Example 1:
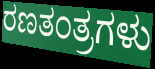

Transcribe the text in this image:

ರಣತಂತ್ರಗಳು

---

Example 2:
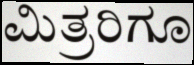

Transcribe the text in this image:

ಮಿತ್ರರಿಗೂ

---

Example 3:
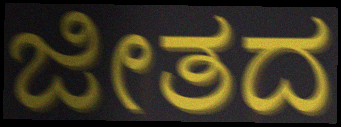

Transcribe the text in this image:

ಜೀತದ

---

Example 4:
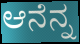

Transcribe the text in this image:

ಆನೆನ್ನ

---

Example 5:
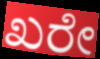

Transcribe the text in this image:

ಖರೇ